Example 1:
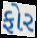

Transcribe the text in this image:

ફોર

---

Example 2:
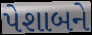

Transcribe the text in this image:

પેશાબને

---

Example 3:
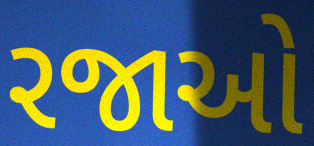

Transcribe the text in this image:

રજાઓ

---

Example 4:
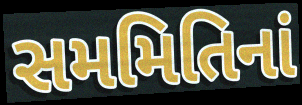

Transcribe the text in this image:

સમમિતિનાં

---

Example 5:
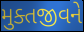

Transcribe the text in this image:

મુક્તજીવને